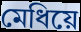
মেধিয়ে